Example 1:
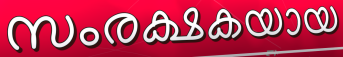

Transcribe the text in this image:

സംരക്ഷകയായ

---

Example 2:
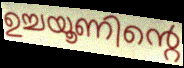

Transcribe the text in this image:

ഉച്ചയൂണിന്റെ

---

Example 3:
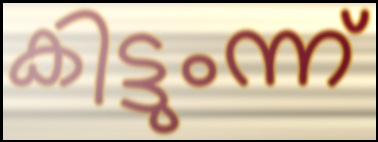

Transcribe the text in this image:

കിട്ടുംന്ന്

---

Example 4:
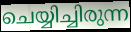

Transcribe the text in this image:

ചെയ്യിച്ചിരുന്ന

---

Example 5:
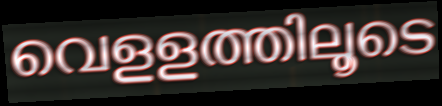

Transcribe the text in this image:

വെളളത്തിലൂടെ